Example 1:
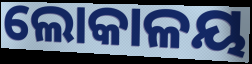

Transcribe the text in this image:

ଲୋକାଳୟ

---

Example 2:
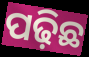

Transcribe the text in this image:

ପଢ଼ିଛ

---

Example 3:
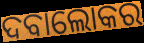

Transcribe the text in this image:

ଦବାଲୋକର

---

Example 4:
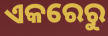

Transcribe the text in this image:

ଏକରେରୁ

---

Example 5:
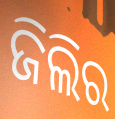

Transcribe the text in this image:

ଜିଲିର